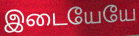
இடையேயே